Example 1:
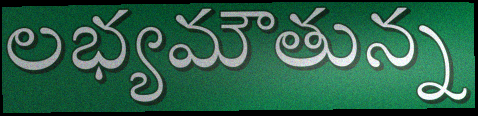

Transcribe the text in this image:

లభ్యమౌతున్న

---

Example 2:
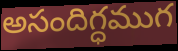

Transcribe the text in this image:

అసందిగ్ధముగ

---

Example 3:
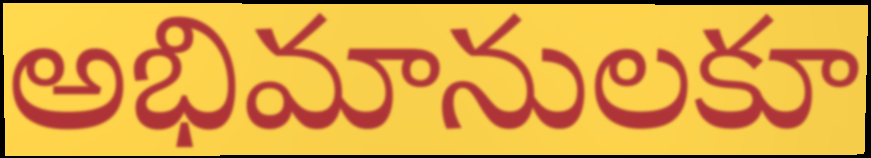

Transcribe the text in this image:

అభిమానులకూ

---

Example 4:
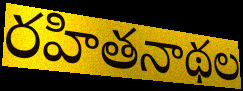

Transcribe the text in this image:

రహితనాథల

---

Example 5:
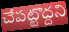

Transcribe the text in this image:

చేపట్టొద్దని